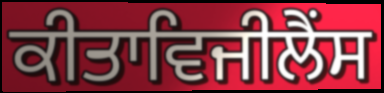
ਕੀਤਾਵਿਜੀਲੈਂਸ